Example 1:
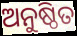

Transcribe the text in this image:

ଅନୁଷ୍ଠିତ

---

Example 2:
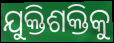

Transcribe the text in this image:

ଯୁକ୍ତିଶକ୍ତିକୁ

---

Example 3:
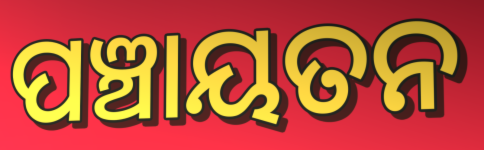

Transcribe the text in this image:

ପଞ୍ଚାୟତନ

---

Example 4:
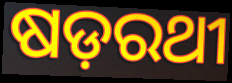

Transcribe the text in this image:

ଷଡ଼ରଥୀ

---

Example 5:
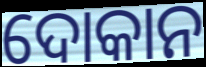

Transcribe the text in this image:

ଦୋକାନ